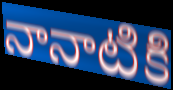
నానాటికి